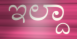
ಇಲ್ದಾ